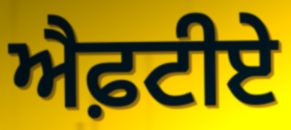
ਐਫ਼ਟੀਏ